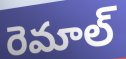
రెమాల్